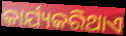
କାର୍ଯ୍ୟକରିଥାଏ